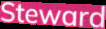
Steward